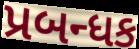
પ્રબન્ધક